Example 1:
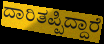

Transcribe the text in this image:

ದಾರಿತಪ್ಪಿದ್ದಾರೆ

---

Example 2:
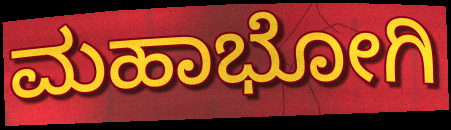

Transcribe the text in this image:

ಮಹಾಭೋಗಿ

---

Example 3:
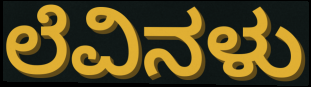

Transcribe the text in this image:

ಲೆವಿನಳು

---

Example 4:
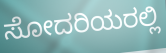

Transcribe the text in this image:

ಸೋದರಿಯರಲ್ಲಿ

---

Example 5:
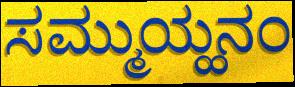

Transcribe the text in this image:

ಸಮ್ಮುಯ್ಹನಂ